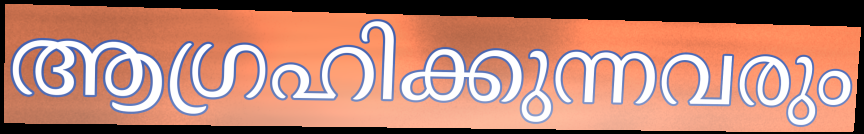
ആഗ്രഹിക്കുന്നവരും